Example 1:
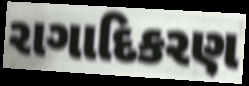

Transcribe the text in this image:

રાગાદિકરણ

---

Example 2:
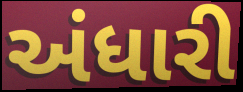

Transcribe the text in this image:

અંધારી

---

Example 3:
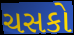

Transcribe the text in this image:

ચસકો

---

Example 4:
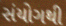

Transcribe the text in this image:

સંયોગથી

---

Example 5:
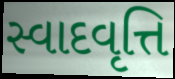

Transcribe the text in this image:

સ્વાદવૃત્તિ